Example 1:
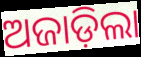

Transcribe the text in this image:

ଅଜାଡ଼ିଲା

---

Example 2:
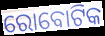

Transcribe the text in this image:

ରୋବୋଟିକ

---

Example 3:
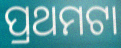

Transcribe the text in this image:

ପ୍ରଥମଟା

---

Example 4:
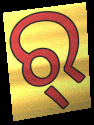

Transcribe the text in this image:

ର୍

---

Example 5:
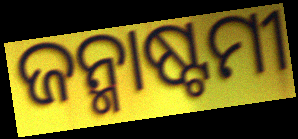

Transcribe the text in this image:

ଜନ୍ମାଷ୍ଟମୀ